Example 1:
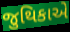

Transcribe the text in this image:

જુથિકાએ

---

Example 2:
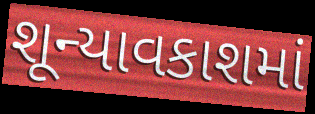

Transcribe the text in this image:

શૂન્યાવકાશમાં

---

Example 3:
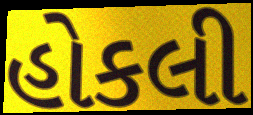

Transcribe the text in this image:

હોકલી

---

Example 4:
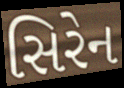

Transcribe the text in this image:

સિરેન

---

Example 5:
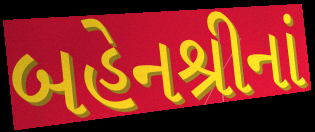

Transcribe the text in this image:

બહેનશ્રીનાં